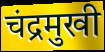
चंद्रमुखी